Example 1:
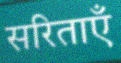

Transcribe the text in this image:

सरिताएँ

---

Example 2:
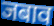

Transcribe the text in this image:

जबाव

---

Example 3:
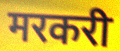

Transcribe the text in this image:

मरकरी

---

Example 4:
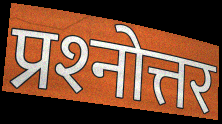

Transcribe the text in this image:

प्रश्‍नोत्तर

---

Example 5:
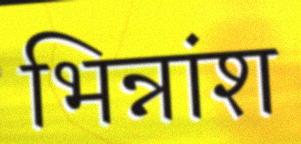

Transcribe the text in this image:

भिन्नांश